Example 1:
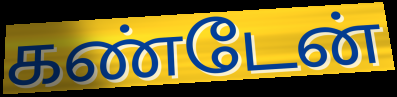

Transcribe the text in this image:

கண்டேன்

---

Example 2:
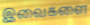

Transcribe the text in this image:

இவைகளை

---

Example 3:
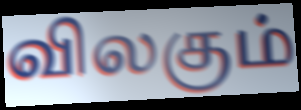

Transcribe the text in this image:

விலகும்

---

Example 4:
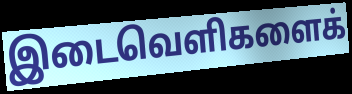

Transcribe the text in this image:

இடைவெளிகளைக்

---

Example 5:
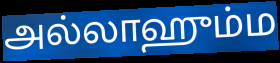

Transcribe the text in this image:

அல்லாஹும்ம